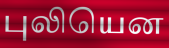
புலியென